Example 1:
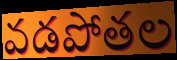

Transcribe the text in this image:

వడపోతల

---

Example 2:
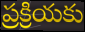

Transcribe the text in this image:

ప్రక్రియకు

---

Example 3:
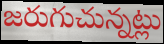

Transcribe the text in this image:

జరుగుచున్నట్లు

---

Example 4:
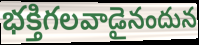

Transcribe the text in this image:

భక్తిగలవాడైనందున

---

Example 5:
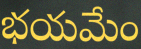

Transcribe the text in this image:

భయమేం